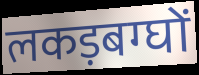
लकड़बग्घों